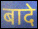
बादे